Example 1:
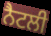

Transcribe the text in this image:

ਨੈਟਲੀ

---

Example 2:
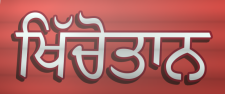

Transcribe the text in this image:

ਖਿੱਚੋਤਾਨ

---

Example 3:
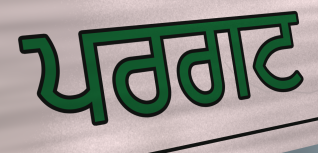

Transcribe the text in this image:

ਪਰਗਟ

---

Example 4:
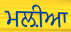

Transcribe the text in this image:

ਮਲ਼ੀਆ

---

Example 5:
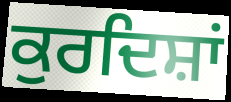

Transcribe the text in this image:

ਕੁਰਦਿਸ਼ਾਂ